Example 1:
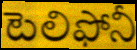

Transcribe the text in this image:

టెలిఫోనీ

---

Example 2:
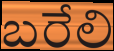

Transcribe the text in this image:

బరేలి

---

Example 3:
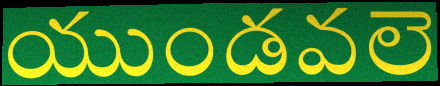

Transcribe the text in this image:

యుండవలె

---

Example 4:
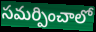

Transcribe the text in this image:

సమర్పించాలో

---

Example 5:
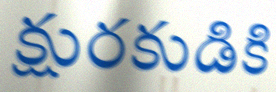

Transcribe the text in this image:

క్షురకుడికి